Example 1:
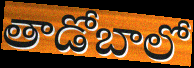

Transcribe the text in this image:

తాడోబాలో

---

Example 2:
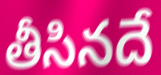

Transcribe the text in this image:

తీసినదే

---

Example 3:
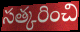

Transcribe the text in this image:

సత్కరించి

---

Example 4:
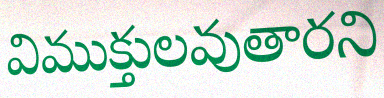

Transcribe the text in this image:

విముక్తులవుతారని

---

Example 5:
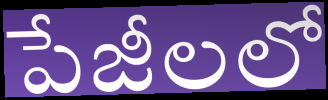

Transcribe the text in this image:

పేజీలలో